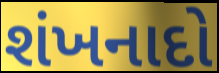
શંખનાદો